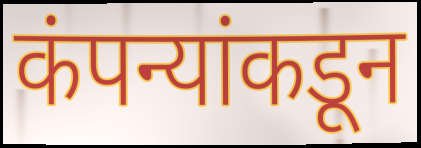
कंपन्यांकडून